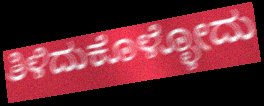
ತಿಳಿದುಕೊಳ್ಳೋದು